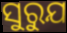
ସୁରୁଯ